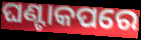
ଘଣ୍ଟାକପରେ